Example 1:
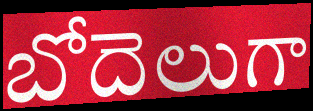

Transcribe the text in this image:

బోదెలుగా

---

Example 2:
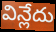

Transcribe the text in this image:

విన్లేదు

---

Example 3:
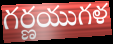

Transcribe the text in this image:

గర్ణయుగళ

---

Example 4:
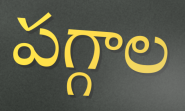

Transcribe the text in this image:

పగ్గాల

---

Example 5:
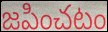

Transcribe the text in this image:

జపించటం